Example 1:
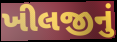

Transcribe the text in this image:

ખીલજીનું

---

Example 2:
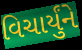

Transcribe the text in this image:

વિચાર્યુંને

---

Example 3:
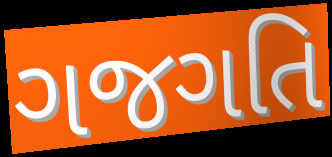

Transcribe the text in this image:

ગજગતિ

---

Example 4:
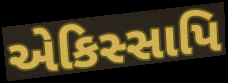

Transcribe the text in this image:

એકિસ્સાપિ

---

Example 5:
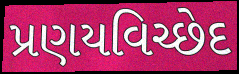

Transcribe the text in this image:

પ્રણયવિચ્છેદ